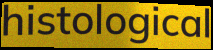
histological